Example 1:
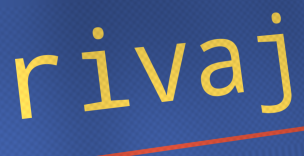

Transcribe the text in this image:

rivaj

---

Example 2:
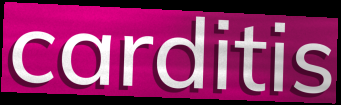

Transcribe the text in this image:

carditis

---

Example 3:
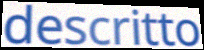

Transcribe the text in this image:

descritto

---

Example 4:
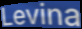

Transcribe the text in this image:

Levina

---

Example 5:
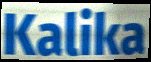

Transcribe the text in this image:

Kalika